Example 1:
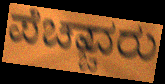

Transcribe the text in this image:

ಪೆಚ್ಚಾದರು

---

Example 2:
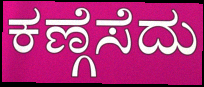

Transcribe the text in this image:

ಕಣ್ಗೆಸೆದು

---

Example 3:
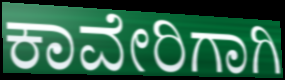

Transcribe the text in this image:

ಕಾವೇರಿಗಾಗಿ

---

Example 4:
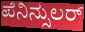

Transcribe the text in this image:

ಪೆನಿನ್ಸುಲರ್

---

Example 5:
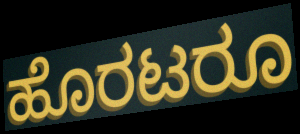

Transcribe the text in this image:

ಹೊರಟರೂ